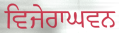
ਵਿਜੇਰਾਘਵਨ